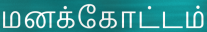
மனக்கோட்டம்